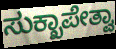
ಸುಕ್ಖಾಪೇತ್ವಾ